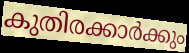
കുതിരക്കാർക്കും